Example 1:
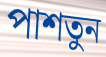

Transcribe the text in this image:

পাশতুন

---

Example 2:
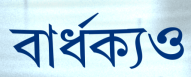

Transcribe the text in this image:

বার্ধক্যও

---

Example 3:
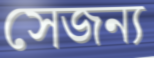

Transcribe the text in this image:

সেজন্য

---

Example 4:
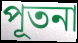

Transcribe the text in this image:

পূতনা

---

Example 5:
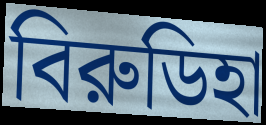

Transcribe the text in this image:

বিরুডিহা